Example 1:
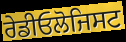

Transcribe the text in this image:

ਰੇਡੀਓਲੋਜਿਸਟ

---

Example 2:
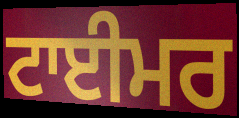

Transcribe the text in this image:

ਟਾਈਮਰ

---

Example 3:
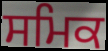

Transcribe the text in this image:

ਸਮਿਕ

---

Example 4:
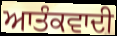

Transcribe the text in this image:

ਆਤੰਕਵਾਦੀ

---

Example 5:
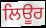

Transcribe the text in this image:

ਲਿਊਰ